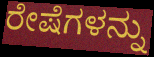
ರೇಷೆಗಳನ್ನು